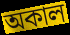
অকাল